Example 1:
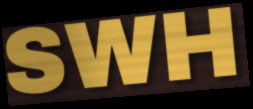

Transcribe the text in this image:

SWH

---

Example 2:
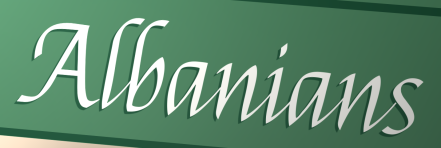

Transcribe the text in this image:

Albanians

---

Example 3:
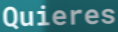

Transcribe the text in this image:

Quieres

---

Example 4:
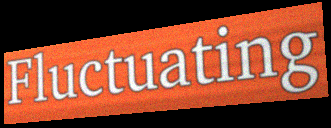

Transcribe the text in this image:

Fluctuating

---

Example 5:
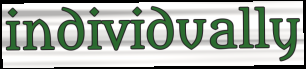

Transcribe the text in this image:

individually